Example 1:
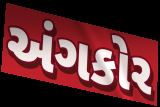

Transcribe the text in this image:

અંગકોર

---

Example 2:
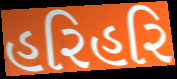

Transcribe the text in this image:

હરિહરિ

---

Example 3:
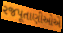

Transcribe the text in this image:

રજપૂતાણીઓએ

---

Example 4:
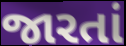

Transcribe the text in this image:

જારતાં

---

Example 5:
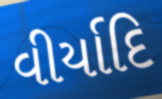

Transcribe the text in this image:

વીર્યાદિ